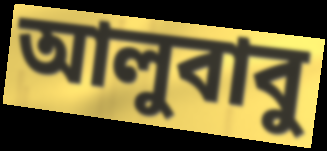
আলুবাবু